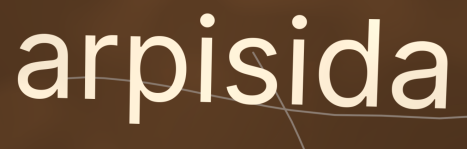
arpisida